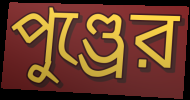
পুণ্ড্রের